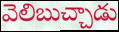
వెలిబుచ్చాడు